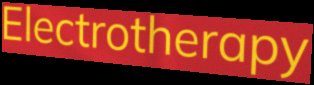
Electrotherapy